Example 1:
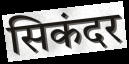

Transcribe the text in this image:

सिकंदर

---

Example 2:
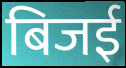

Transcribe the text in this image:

बिजई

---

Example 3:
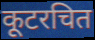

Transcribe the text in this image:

कूटरचित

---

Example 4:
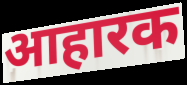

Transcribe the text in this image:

आहारक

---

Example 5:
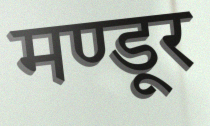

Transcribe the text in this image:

मण्डूर